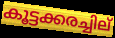
കൂട്ടക്കരച്ചില്